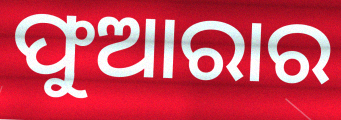
ଫୁଆରାର